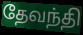
தேவந்தி